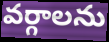
వర్గాలను